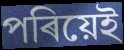
পৰিয়েই